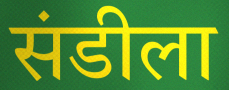
संडीला